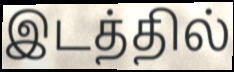
இடத்தில்